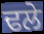
ਢਲੇ